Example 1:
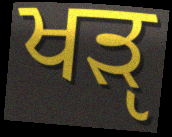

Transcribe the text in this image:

ਖੜੵ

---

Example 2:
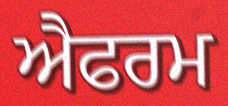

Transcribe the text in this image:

ਐਫਰਮ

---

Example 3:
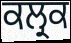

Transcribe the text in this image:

ਕਲ੍ਰਕ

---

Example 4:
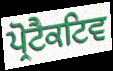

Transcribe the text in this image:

ਪ੍ਰੋਟੈਕਟਿਵ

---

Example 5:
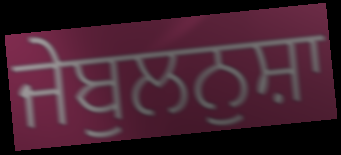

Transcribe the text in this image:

ਜੇਬੁਲਨੁਸ਼ਾ